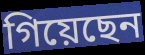
গিয়েছেন